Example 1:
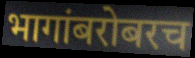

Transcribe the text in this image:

भागांबरोबरच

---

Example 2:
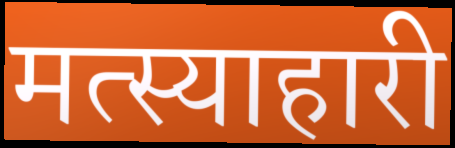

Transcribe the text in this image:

मत्स्याहारी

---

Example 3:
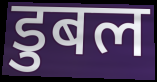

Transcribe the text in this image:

डुबल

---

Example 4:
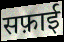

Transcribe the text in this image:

सफ़ाई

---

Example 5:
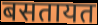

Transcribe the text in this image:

बसतायत